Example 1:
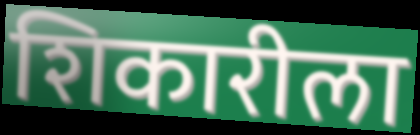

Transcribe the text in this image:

शिकारीला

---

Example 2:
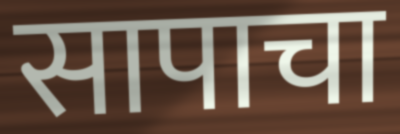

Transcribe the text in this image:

सापाचा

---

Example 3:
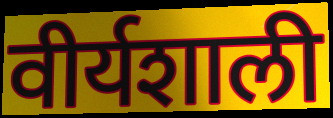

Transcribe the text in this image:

वीर्यशाली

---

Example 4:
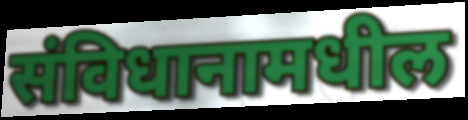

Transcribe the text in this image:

संविधानामधील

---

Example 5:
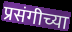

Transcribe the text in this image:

प्रसंगीच्या